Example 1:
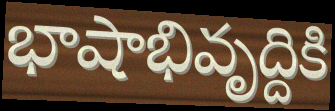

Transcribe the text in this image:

భాషాభివృద్దికి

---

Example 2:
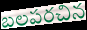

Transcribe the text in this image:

బలపరచిన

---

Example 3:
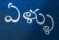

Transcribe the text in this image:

ఏళ్ళు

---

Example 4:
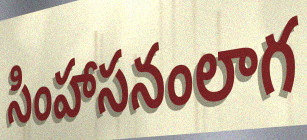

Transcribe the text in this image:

సింహాసనంలాగ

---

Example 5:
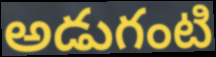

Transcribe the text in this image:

అడుగంటి